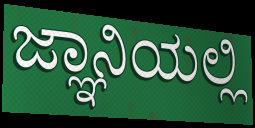
ಜ್ಞಾನಿಯಲ್ಲಿ